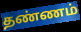
தண்ணம்